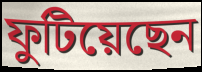
ফুটিয়েছেন